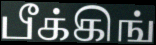
பீக்கிங்